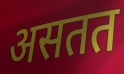
असतत